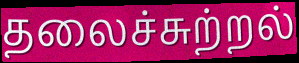
தலைச்சுற்றல்